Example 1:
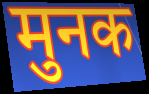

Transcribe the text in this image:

मुनक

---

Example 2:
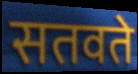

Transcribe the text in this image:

सतवते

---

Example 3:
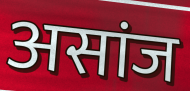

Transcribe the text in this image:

असांज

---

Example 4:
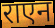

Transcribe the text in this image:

राएन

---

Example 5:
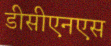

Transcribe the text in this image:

डीसीएनएस